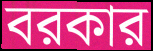
বরকার